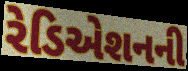
રેડિએશનની